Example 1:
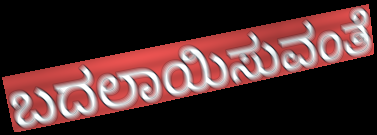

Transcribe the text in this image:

ಬದಲಾಯಿಸುವಂತೆ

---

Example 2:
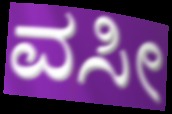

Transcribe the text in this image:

ವಸೀ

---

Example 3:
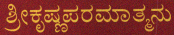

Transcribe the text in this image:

ಶ್ರೀಕೃಷ್ಣಪರಮಾತ್ಮನು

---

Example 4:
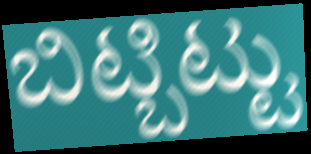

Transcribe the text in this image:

ಬಿಟ್ಬಿಟ್ಟು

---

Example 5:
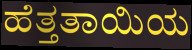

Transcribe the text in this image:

ಹೆತ್ತತಾಯಿಯ